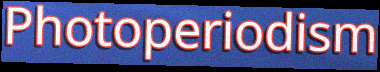
Photoperiodism